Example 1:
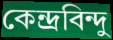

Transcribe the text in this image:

কেন্দ্ৰবিন্দু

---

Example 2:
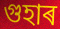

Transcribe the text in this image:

গুহাৰ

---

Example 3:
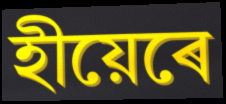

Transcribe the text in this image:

হীয়েৰে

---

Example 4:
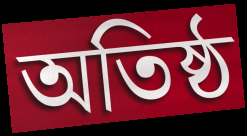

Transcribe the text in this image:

অতিষ্ঠ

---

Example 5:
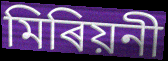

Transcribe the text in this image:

মিৰিয়নী